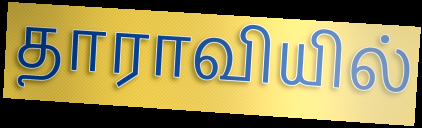
தாராவியில்